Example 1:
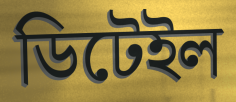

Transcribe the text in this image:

ডিটেইল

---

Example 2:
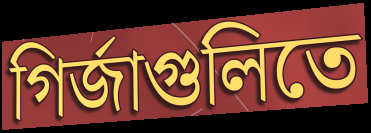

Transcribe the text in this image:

গির্জাগুলিতে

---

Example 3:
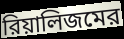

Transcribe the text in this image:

রিয়ালিজমের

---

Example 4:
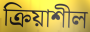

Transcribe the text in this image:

ক্রিয়াশীল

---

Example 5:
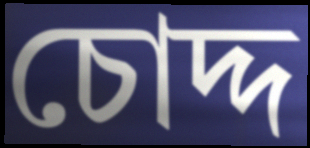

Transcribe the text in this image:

চোদ্দ